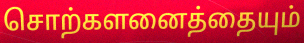
சொற்களனைத்தையும்